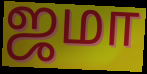
ஜமா